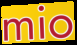
mio